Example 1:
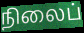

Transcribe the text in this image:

நிலைப்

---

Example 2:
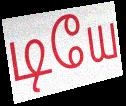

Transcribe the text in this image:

டியே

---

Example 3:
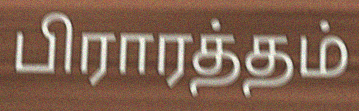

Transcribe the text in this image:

பிராரத்தம்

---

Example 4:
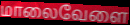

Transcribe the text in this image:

மாலைவேளை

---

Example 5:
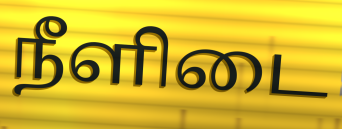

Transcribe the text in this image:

நீளிடை